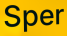
Sper